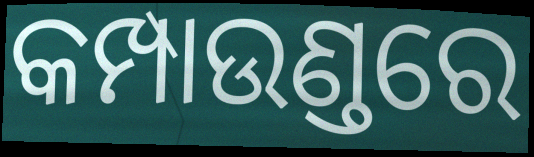
କମ୍ପାଉଣ୍ଡରେ